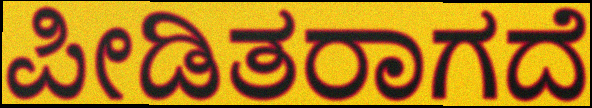
ಪೀಡಿತರಾಗದೆ